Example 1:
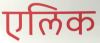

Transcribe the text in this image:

एलिक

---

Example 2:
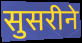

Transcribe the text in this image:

सुसरीने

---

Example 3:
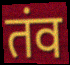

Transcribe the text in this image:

तंव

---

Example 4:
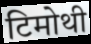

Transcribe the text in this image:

टिमोथी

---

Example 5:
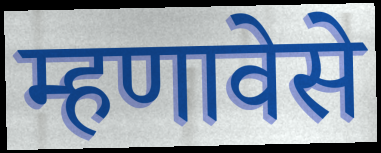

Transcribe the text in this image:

म्हणावेसे